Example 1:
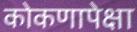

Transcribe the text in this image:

कोकणापेक्षा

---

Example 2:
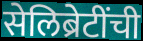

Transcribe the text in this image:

सेलिब्रेटींची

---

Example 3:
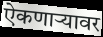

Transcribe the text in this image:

ऐकणाऱ्यावर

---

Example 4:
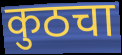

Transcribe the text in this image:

कुठचा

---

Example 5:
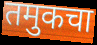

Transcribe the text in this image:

तमुकचा